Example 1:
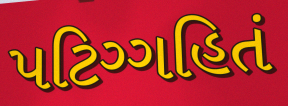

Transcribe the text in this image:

પટિગ્ગહિતં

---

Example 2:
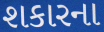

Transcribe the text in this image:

શકારના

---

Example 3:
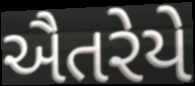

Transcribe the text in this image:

ઐતરેયે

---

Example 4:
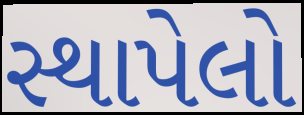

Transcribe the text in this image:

સ્થાપેલો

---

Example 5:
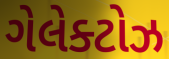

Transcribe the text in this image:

ગેલેક્ટોઝ